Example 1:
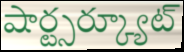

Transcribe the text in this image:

షార్ట్సర్క్యూట్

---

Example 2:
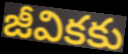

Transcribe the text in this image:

జీవికకు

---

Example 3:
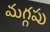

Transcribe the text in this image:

మగ్గపు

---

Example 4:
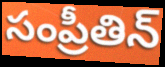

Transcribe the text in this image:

సంప్రీతిన్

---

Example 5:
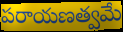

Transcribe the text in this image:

పరాయణత్వమే